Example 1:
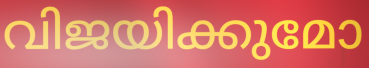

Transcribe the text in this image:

വിജയിക്കുമോ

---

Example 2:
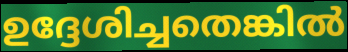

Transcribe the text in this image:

ഉദ്ദേശിച്ചതെങ്കിൽ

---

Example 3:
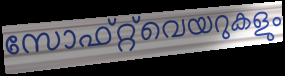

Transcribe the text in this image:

സോഫ്റ്റ്‌വെയറുകളും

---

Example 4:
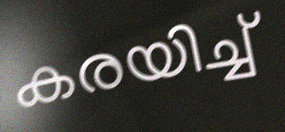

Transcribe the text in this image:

കരയിച്ച്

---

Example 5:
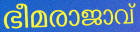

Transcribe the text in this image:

ഭീമരാജാവ്